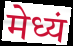
मेध्यं